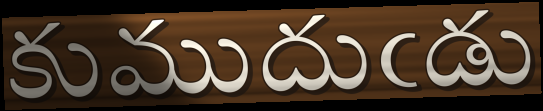
కుముదుఁడు